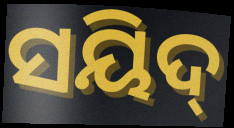
ସୟିଦ୍